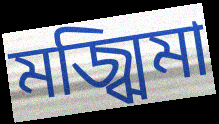
মজ্ঝিমা